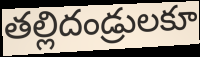
తల్లిదండ్రులకూ